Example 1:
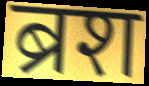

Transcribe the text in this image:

ब्रश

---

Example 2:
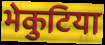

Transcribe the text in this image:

भेकुटिया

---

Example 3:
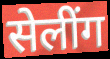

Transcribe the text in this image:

सेलींग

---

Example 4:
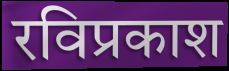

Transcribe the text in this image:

रविप्रकाश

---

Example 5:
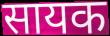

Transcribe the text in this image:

सायक